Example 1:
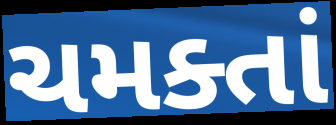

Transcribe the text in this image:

ચમક્તાં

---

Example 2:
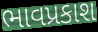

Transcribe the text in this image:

ભાવપ્રકાશ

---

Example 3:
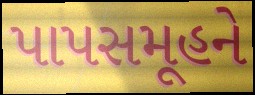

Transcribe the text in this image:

પાપસમૂહને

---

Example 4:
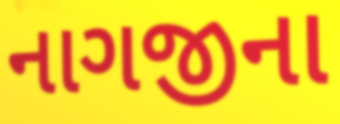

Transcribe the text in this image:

નાગજીના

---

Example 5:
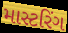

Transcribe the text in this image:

માસ્ટરિંગ